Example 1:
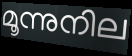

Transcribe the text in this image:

മൂന്നുനില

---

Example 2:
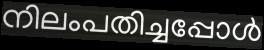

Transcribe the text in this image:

നിലംപതിച്ചപ്പോൾ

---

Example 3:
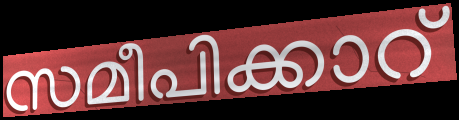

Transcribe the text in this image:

സമീപിക്കാറ്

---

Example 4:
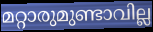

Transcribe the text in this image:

മറ്റാരുമുണ്ടാവില്ല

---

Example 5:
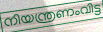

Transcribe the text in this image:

നിയന്ത്രണംവിട്ട